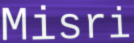
Misri